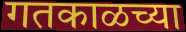
गतकाळच्या